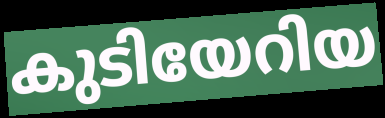
കുടിയേറിയ